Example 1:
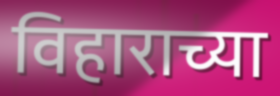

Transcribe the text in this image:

विहाराच्या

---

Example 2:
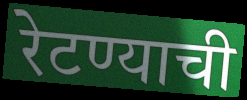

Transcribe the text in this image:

रेटण्याची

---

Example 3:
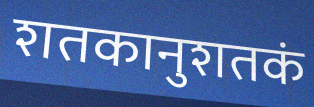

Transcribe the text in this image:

शतकानुशतकं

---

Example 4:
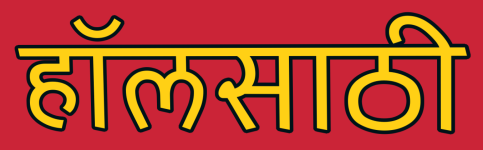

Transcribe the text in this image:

हॉलसाठी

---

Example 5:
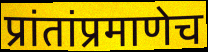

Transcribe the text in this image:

प्रांतांप्रमाणेच